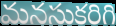
మనసుకరిగి